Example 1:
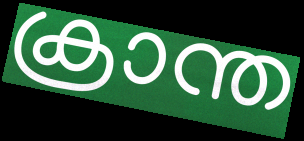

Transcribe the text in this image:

ക്രാന്ത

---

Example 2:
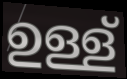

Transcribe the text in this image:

ഉള്ള്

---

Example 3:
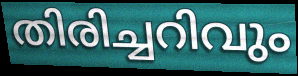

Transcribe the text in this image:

തിരിച്ചറിവും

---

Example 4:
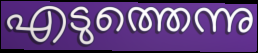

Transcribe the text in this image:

എടുത്തെന്നു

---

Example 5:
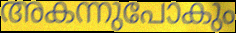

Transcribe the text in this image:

അകന്നുപോകും